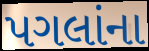
પગલાંના